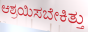
ಆಶ್ರಯಿಸಬೇಕಿತ್ತು